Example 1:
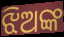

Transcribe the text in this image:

ଝିଅଙ୍କ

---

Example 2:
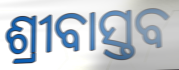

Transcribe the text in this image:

ଶ୍ରୀବାସ୍ତବ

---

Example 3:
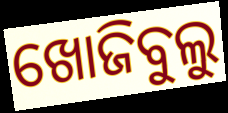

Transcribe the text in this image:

ଖୋଜିବୁଲୁ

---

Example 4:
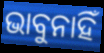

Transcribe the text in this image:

ଭାବୁନାହିଁ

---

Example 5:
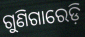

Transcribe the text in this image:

ଗୁଣିଗାରେଡ଼ି